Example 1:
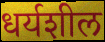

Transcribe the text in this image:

धर्यशील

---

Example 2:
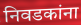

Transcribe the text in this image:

निवडकांना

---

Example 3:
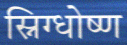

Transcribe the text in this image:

स्निग्धोष्ण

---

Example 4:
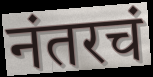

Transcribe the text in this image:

नंतरचं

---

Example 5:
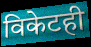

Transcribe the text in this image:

विकेटही